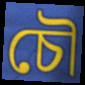
চৌ